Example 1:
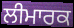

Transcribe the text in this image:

ਲੀਮਾਰਕ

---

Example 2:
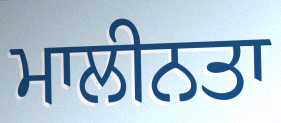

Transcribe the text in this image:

ਮਾਲੀਨਤਾ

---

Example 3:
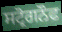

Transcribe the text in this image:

ਸਟ੍ਰੋਗਨੌਫ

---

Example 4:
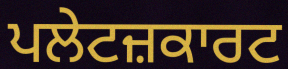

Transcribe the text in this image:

ਪਲੇਟਜ਼ਕਾਰਟ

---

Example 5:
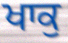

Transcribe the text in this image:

ਖਾਕੁ